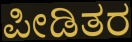
ಪೀಡಿತರ